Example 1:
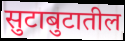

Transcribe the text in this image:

सुटाबुटातील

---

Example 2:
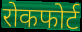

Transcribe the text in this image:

रोकफोर्ट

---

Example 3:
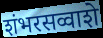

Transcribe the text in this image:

शंभरसव्वाशे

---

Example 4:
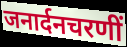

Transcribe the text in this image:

जनार्दनचरणीं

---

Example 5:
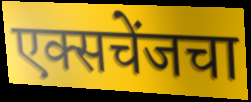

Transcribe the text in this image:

एक्सचेंजचा